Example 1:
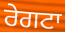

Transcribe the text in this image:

ਰੇਗਟਾ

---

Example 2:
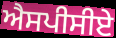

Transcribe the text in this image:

ਐਸਪੀਸੀਏ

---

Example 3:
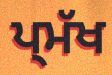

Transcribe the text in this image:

ਪ੍ਮੱਖ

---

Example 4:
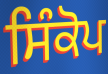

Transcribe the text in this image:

ਸਿੰਕੋਪ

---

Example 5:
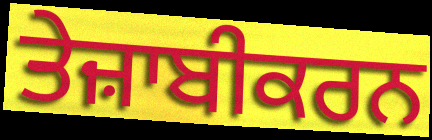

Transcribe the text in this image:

ਤੇਜ਼ਾਬੀਕਰਨ